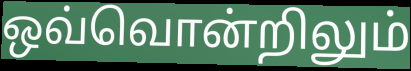
ஒவ்வொன்றிலும்